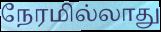
நேரமில்லாது